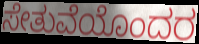
ಸೇತುವೆಯೊಂದರ